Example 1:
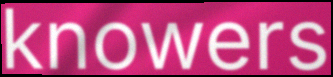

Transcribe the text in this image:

knowers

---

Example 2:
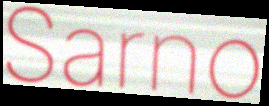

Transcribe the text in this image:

Sarno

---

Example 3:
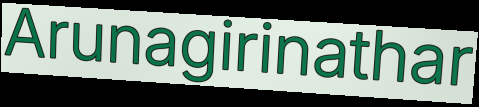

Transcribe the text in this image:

Arunagirinathar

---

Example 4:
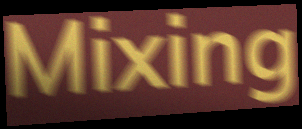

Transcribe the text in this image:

Mixing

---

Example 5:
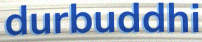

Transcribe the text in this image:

durbuddhi